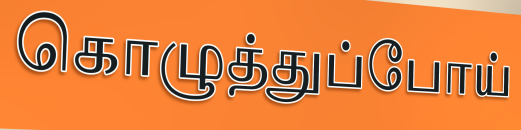
கொழுத்துப்போய்